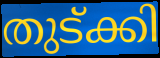
തുട്ക്കി